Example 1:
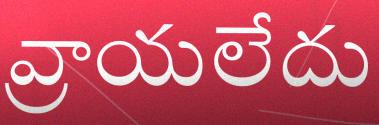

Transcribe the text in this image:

వ్రాయలేదు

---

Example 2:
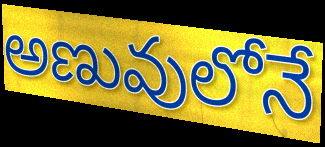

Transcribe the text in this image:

అణువులోనే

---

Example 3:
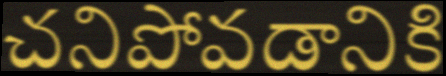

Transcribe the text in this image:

చనిపోవడానికి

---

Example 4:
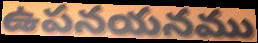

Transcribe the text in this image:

ఉపనయనము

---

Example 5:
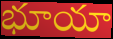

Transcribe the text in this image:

భూయా